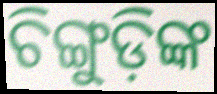
ଚିଙ୍ଗୁଡ଼ିଙ୍କ